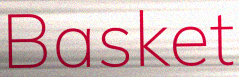
Basket